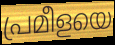
പ്രമീളയെ